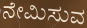
ನೇಮಿಸುವ